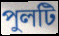
পুলটি